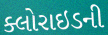
ક્લોરાઇડની